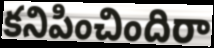
కనిపించిందిరా